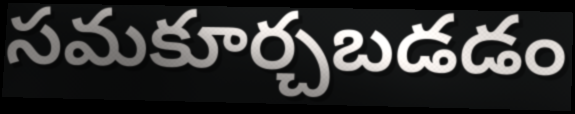
సమకూర్చబడడం